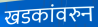
खडकांवरुन